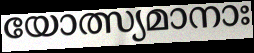
യോത്സ്യമാനാഃ